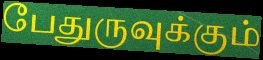
பேதுருவுக்கும்